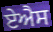
ਏਐਸ